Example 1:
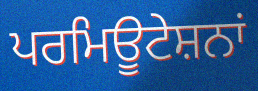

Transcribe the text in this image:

ਪਰਮਿਊਟੇਸ਼ਨਾਂ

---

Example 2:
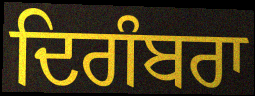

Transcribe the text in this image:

ਦਿਗੰਬਰਾ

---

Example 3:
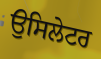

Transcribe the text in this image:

ਉਸਿਲੇਟਰ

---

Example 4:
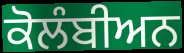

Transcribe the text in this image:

ਕੋਲੰਬੀਅਨ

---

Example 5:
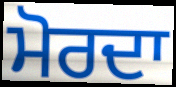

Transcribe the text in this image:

ਮੋਰਦਾ